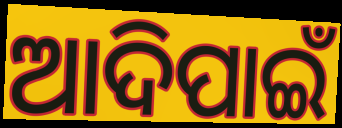
ଆଦିପାଇଁ